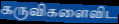
கருவிகளைவிட